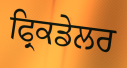
ਫ੍ਰਿਕਡੇਲਰ